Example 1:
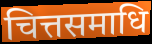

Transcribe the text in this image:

चित्तसमाधि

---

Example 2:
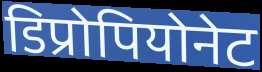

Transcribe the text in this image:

डिप्रोपियोनेट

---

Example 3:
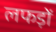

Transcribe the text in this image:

लफड़ों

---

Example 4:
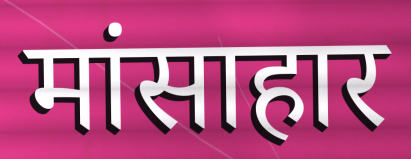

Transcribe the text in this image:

मांसाहार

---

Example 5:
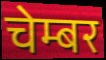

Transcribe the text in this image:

चेम्बर